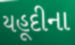
યહૂદીના